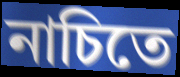
নাচিতে